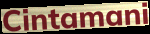
Cintamani